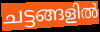
ചട്ടങ്ങളിൽ